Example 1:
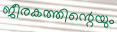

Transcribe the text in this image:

ജീരകത്തിന്റെയും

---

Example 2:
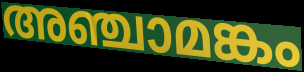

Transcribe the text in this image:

അഞ്ചാമങ്കം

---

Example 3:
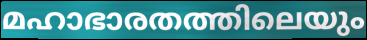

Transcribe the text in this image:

മഹാഭാരതത്തിലെയും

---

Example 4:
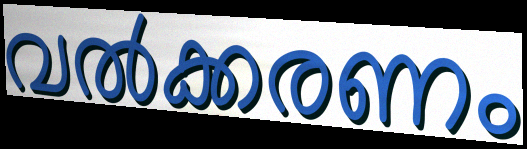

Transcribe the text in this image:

വൽക്കരണം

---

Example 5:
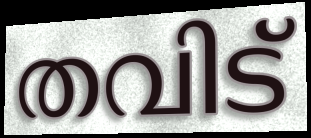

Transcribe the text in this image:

തവിട്